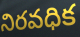
నిరవధిక